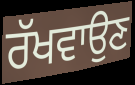
ਰੱਖਵਾਉਣ